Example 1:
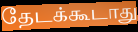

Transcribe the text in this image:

தேடக்கூடாது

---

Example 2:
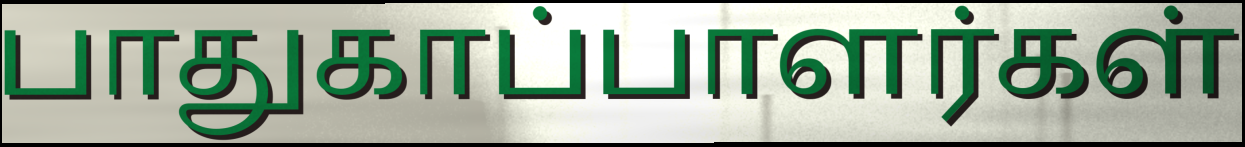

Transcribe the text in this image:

பாதுகாப்பாளர்கள்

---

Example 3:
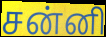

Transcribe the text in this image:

சன்னி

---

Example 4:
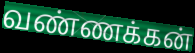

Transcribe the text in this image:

வண்ணக்கன்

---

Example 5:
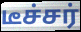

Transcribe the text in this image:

டீச்சர்